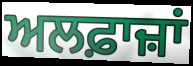
ਅਲਫ਼ਾਜ਼ਾਂ